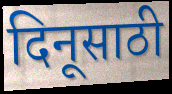
दिनूसाठी